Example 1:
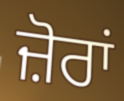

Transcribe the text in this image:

ਜ਼ੋਰਾਂ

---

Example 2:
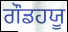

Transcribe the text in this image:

ਗੌਡਹਯੂ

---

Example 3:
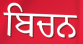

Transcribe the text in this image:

ਬਿਚਨ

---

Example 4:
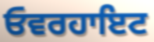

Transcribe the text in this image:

ਓਵਰਹਾਇਟ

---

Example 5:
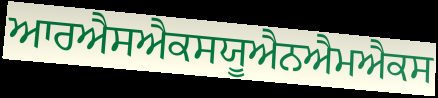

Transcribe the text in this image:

ਆਰਐਸਐਕਸਯੂਐਨਐਮਐਕਸ